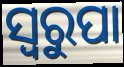
ସ୍ୱରୁପା